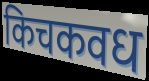
किचकवध